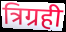
त्रिग्रही